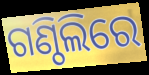
ଗଣ୍ଠିଲିରେ